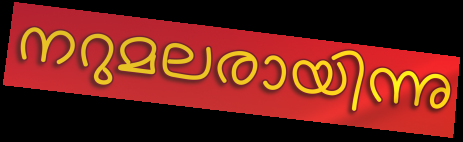
നറുമലരായിന്നു